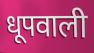
धूपवाली